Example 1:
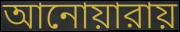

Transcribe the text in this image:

আনোয়ারায়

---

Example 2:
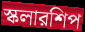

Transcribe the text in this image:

স্কলারশিপ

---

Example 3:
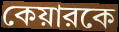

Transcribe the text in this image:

কেয়ারকে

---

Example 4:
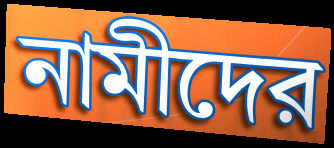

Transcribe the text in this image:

নামীদের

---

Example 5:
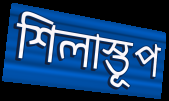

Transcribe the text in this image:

শিলাস্তূপ